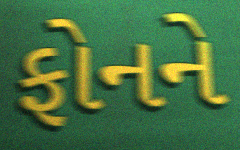
ફોનને